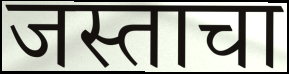
जस्ताचा